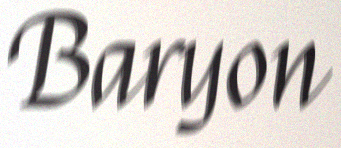
Baryon